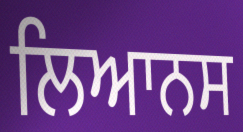
ਲਿਆਨਸ